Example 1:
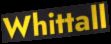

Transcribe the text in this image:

Whittall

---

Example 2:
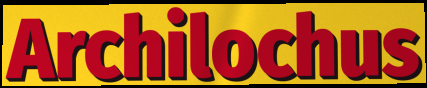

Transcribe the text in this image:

Archilochus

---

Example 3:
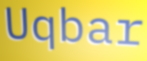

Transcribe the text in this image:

Uqbar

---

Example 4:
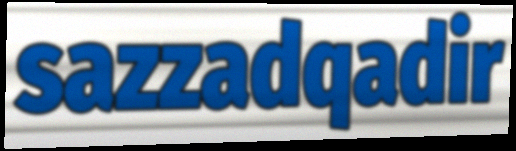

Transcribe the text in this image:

sazzadqadir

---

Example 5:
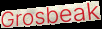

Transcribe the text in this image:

Grosbeak